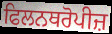
ਫਿਲਨਥਰੋਪੀਜ਼